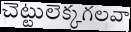
చెట్టులెక్కగలవా